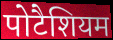
पोटैशियम